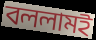
বললামই